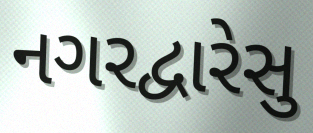
નગરદ્વારેસુ